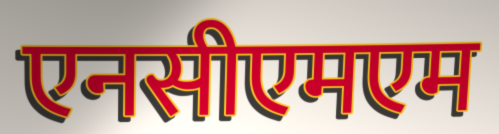
एनसीएमएम